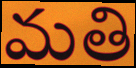
మతి